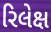
રિલેક્ષ